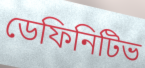
ডেফিনিটিভ